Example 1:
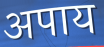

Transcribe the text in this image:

अपाय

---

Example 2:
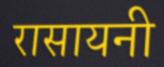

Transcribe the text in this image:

रासायनी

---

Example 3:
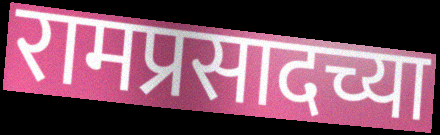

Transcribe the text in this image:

रामप्रसादच्या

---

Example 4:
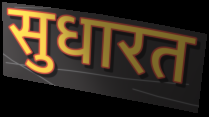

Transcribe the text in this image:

सुधारत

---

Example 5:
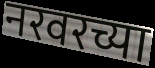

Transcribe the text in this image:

नरवरच्या